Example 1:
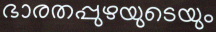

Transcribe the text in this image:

ഭാരതപ്പുഴയുടെയും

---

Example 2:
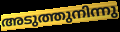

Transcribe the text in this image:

അടുത്തുനിന്നു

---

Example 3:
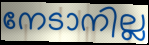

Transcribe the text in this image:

നേടാനില്ല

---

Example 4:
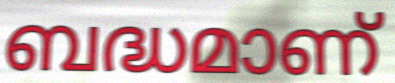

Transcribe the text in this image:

ബദ്ധമാണ്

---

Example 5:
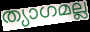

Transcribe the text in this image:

ത്യാഗമല്ല